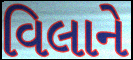
વિલાને